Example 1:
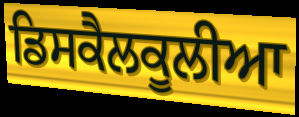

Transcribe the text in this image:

ਡਿਸਕੈਲਕੂਲੀਆ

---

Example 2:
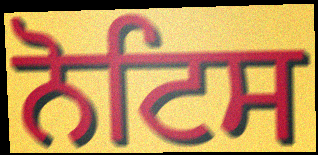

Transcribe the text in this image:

ਨੋਟਿਸ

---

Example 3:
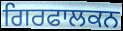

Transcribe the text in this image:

ਗਿਰਫਾਲਕਨ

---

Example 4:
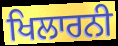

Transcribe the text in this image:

ਖਿਲਾਰਨੀ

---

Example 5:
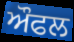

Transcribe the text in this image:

ਔਫਲ